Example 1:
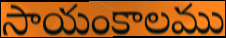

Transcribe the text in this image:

సాయంకాలము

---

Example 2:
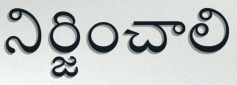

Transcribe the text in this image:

నిర్జించాలి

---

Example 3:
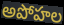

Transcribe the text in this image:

అపోహల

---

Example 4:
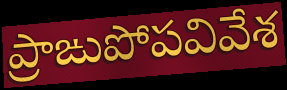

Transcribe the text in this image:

ప్రాఙుపోపవివేశ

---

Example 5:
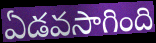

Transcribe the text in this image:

ఏడవసాగింది